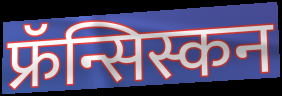
फ्रॅन्सिस्कन